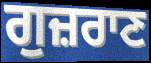
ਗੁਜ਼ਰਾਣ